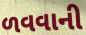
ળવવાની